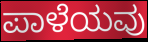
ಪಾಳೆಯವು